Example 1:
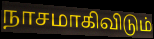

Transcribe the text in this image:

நாசமாகிவிடும்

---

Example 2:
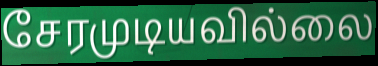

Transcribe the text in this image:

சேரமுடியவில்லை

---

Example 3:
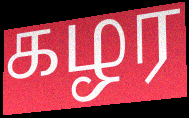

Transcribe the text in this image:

கழர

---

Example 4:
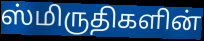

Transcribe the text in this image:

ஸ்மிருதிகளின்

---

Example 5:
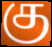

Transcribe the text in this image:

கு